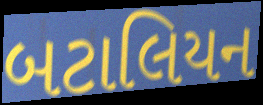
બટાલિયન